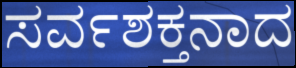
ಸರ್ವಶಕ್ತನಾದ